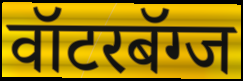
वॉटरबॅग्ज